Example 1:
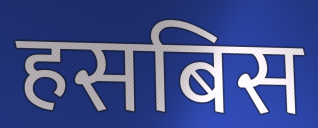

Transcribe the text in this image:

हसबिस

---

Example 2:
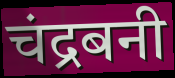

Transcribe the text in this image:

चंद्रबनी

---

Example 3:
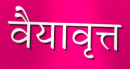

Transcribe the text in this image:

वैयावृत्त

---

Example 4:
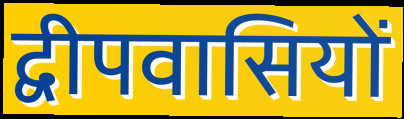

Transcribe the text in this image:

द्वीपवासियों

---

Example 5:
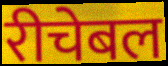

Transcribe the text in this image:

रीचेबल